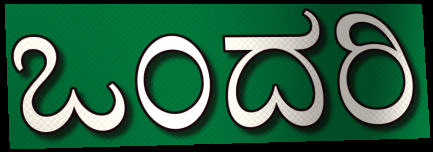
ಒಂದರಿ